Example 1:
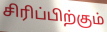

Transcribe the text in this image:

சிரிப்பிற்கும்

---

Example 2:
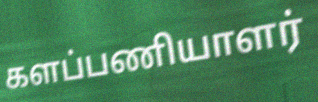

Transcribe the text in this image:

களப்பணியாளர்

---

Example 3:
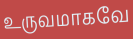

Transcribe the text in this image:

உருவமாகவே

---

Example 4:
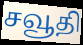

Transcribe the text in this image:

சவூதி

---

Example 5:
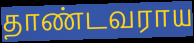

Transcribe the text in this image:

தாண்டவராய